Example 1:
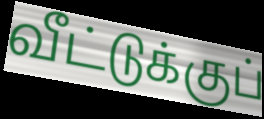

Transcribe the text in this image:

வீட்டுக்குப்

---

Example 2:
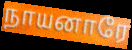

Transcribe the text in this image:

நாயனாரே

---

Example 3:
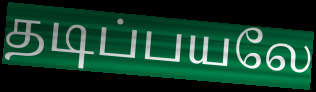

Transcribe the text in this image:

தடிப்பயலே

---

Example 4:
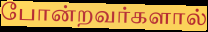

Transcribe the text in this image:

போன்றவர்களால்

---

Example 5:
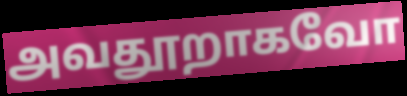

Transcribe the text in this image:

அவதூறாகவோ